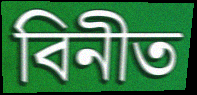
বিনীত